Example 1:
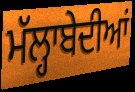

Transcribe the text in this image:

ਮੱਲ੍ਹਾਬੇਦੀਆਂ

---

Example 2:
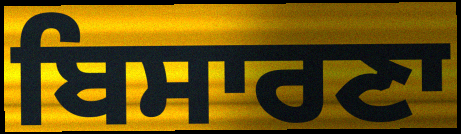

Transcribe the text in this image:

ਬਿਸਾਰਣਾ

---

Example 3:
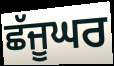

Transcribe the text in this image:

ਛੱਜੂਘਰ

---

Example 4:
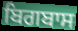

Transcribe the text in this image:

ਬਿਗਬਾਸ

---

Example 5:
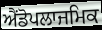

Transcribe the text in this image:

ਐਂਡੋਪਲਾਜਮਿਕ